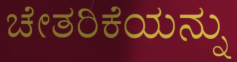
ಚೇತರಿಕೆಯನ್ನು